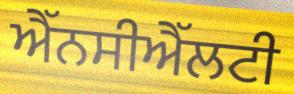
ਐੱਨਸੀਐੱਲਟੀ